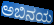
ಅಬಿನಯ